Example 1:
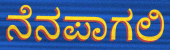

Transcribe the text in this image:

ನೆನಪಾಗಲಿ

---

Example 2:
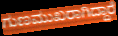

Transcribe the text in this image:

ಗುಣಮುಖರಾಗಿದ್ದಾರೆ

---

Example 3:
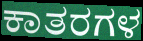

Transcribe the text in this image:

ಕಾತರಗಳ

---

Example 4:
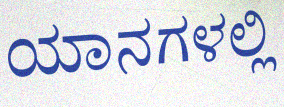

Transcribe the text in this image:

ಯಾನಗಳಲ್ಲಿ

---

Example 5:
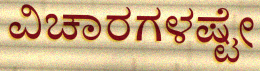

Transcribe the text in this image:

ವಿಚಾರಗಳಷ್ಟೇ